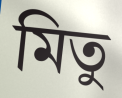
মিতু